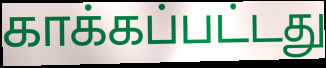
காக்கப்பட்டது